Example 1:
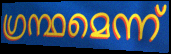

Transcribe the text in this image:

ഗ്രന്ഥമെന്ന്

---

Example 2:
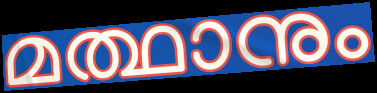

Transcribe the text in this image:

മത്ഥാനും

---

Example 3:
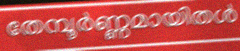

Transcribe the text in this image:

തേമ്പൂർണ്ണമായിതൾ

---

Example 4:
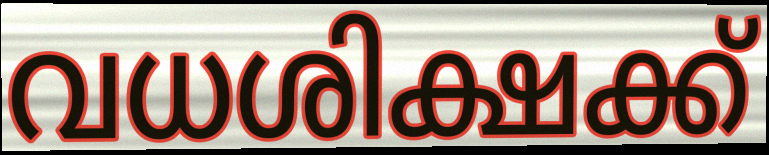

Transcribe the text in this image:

വധശിക്ഷക്ക്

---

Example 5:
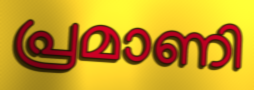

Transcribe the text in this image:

പ്രമാണി